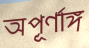
অপূর্ণাঙ্গ